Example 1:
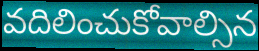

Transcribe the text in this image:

వదిలించుకోవాల్సిన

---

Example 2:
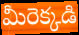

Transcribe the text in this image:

మీరెక్కడి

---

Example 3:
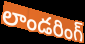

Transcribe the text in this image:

లాండరింగ్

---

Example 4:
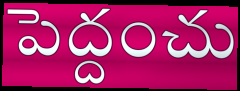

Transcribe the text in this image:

పెద్దంచు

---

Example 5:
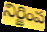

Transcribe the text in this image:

నిర్జింప